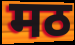
मठ